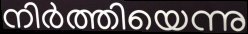
നിർത്തിയെന്നു